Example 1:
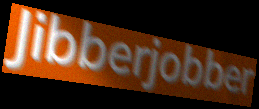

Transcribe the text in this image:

Jibberjobber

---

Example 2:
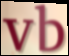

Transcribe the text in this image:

vb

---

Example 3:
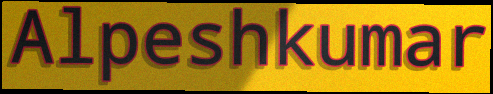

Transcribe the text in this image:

Alpeshkumar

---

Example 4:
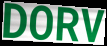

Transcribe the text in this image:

DORV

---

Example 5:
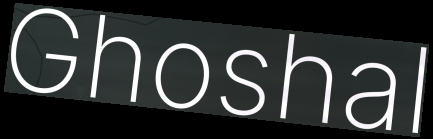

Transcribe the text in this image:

Ghoshal